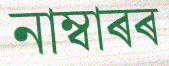
নাম্বাৰৰ